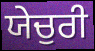
ਯੇਚੁਰੀ